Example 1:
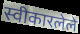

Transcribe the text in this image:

स्वीकारलेले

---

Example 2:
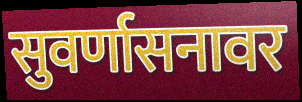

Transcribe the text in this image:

सुवर्णासनावर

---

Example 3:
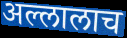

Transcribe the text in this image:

अल्लालाच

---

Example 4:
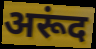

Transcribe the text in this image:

अरूंद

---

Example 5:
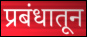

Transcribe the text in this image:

प्रबंधातून